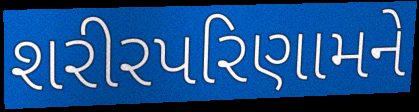
શરીરપરિણામને